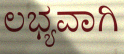
ಲಭ್ಯವಾಗಿ